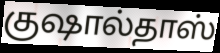
குஷால்தாஸ்